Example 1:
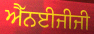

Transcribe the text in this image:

ਐੱਨਈਜੀਜੀ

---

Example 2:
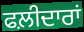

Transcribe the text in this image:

ਫਲ਼ੀਦਾਰਾਂ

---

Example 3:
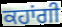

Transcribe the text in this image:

ਕਹਾਂਗੀ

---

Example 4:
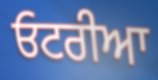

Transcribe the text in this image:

ਓਟਰੀਆ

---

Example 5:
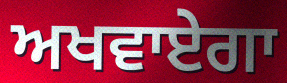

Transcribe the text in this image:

ਅਖਵਾਏਗਾ